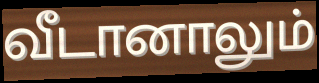
வீடானாலும்